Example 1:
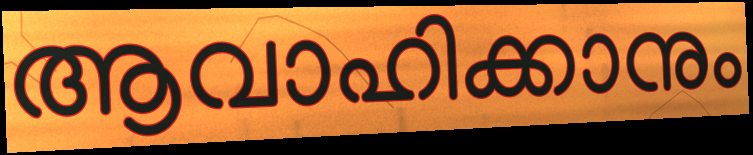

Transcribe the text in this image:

ആവാഹിക്കാനും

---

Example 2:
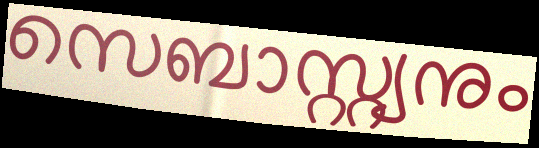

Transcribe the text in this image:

സെബാസ്റ്റ്യനും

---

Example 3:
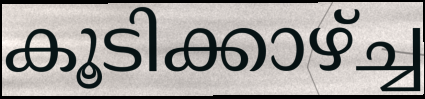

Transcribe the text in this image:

കൂടിക്കാഴ്ച്ച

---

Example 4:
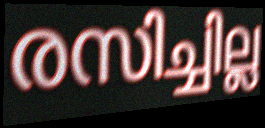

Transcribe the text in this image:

രസിച്ചില്ല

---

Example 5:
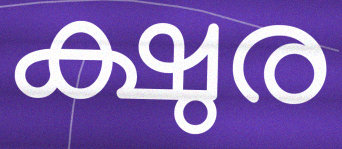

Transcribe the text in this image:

ക്ഷുര